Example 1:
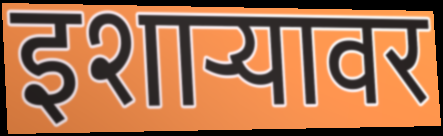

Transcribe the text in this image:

इशार्‍यावर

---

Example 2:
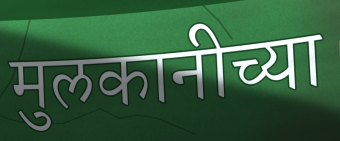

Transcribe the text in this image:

मुलकानीच्या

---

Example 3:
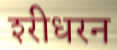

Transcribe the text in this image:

श्रीधरन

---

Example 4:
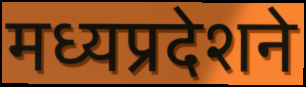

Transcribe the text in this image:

मध्यप्रदेशने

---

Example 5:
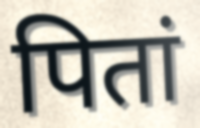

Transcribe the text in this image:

पितां